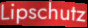
Lipschutz